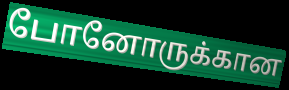
போனோருக்கான